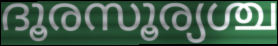
ദൂരസൂര്യശ്ച